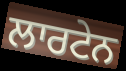
ਲਾਰਟੇਨ